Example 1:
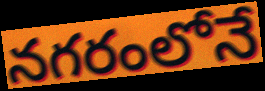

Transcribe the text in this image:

నగరంలోనే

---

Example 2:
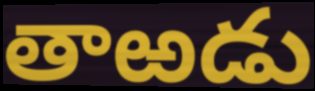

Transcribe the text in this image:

తాఱడు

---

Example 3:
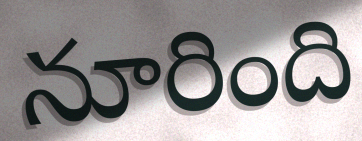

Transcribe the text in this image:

నూరింది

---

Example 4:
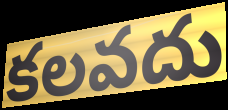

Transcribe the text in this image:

కలవదు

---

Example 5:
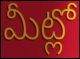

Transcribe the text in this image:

మీట్లో